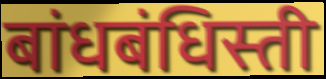
बांधबंधिस्ती